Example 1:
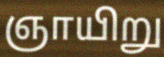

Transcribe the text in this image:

ஞாயிறு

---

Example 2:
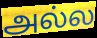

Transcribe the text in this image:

அல்ல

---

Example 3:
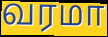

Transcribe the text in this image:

வரமா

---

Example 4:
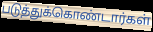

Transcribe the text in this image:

படுத்துக்கொண்டார்கள்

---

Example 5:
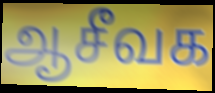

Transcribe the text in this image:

ஆசீவக